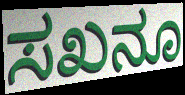
ಸಖನೂ